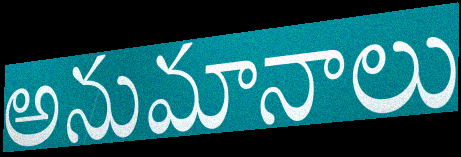
అనుమానాలు